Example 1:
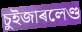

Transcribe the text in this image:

চুইজাৰলেণ্ড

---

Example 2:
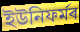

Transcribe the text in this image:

ইউনিফৰ্মৰ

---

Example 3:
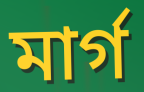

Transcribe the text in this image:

মাৰ্গ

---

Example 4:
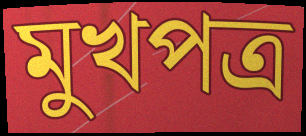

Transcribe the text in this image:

মুখপত্ৰ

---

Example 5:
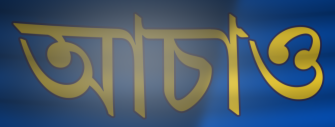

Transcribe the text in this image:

আচাও